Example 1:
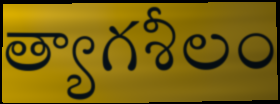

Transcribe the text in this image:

త్యాగశీలం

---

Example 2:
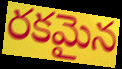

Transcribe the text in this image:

రకమైన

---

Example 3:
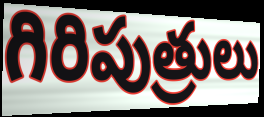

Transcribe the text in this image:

గిరిపుత్రులు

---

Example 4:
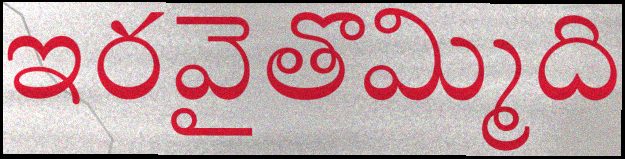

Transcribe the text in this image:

ఇరవైతొమ్మిది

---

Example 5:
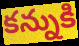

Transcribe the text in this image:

కన్నుకి